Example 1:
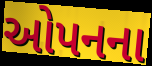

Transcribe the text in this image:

ઓપનના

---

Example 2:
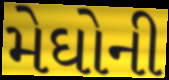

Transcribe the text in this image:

મેઘોની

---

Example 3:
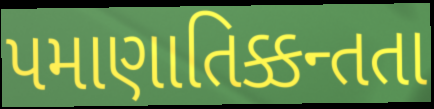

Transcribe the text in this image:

પમાણાતિક્કન્તતા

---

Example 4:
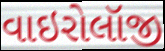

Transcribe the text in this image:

વાઇરોલૉજી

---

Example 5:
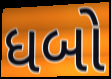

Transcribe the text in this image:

ધબો